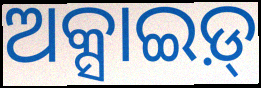
ଅକ୍ସାଇଡ଼୍